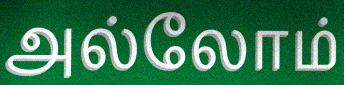
அல்லோம்